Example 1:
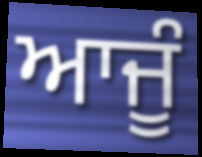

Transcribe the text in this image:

ਆਜੂੰ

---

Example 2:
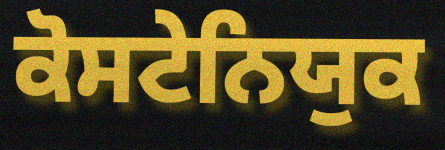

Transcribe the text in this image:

ਕੋਸਟੇਨਿਯੁਕ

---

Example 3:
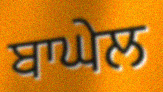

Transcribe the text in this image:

ਬਾਘੇਲ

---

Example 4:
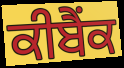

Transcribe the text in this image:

ਕੀਬੈਂਕ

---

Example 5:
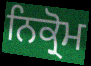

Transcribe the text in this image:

ਨਿਕ੍ਰੋਮ